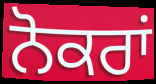
ਨੋਕਰਾਂ